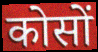
कोसों